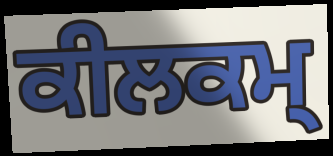
ਕੀਲਕਮ੍